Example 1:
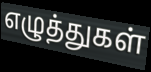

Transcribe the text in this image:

எழுத்துகள்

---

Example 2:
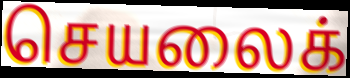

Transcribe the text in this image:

செயலைக்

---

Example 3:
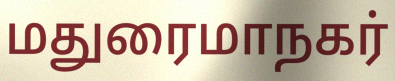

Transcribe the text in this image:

மதுரைமாநகர்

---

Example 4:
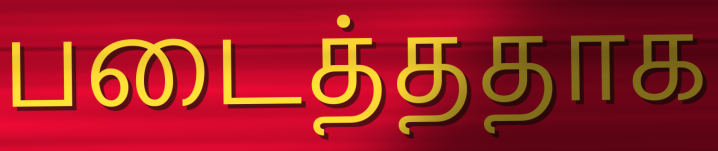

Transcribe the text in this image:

படைத்ததாக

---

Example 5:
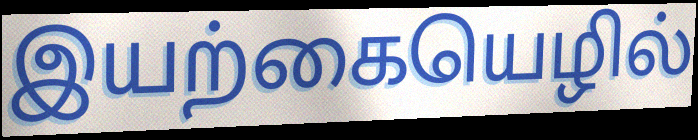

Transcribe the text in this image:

இயற்கையெழில்